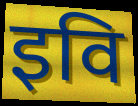
इवि